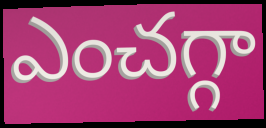
ఎంచగ్గా